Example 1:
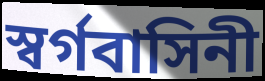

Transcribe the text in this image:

স্বর্গবাসিনী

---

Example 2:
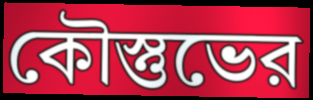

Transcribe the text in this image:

কৌস্তুভের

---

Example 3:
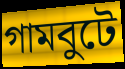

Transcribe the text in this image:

গামবুটে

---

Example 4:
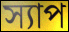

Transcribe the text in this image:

স্যাপ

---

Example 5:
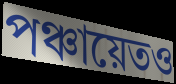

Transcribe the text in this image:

পঞ্চায়েতও